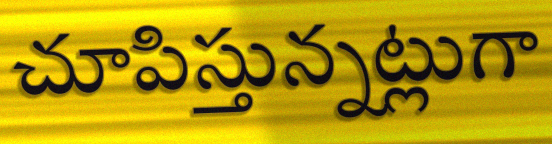
చూపిస్తున్నట్లుగా